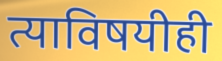
त्याविषयीही